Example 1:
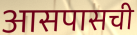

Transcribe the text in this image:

आसपासची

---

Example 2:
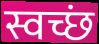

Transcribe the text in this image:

स्वच्छं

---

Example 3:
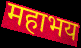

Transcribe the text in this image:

महाभय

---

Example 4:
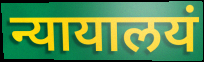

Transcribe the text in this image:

न्यायालयं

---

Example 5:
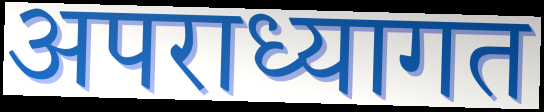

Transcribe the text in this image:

अपराध्यागत